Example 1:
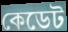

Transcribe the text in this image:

কেডেট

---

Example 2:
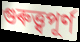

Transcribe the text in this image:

গুৰুত্ত্বপূৰ্ণ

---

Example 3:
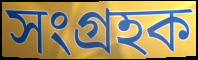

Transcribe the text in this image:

সংগ্ৰহক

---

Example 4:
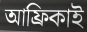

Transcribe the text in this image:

আফ্ৰিকাই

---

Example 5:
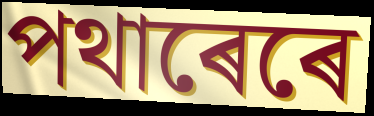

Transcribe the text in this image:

পথাৰেৰে